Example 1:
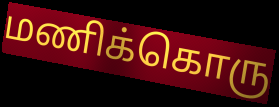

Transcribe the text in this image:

மணிக்கொரு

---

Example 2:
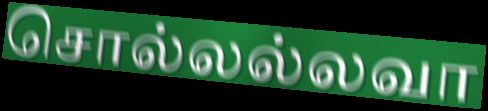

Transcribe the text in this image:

சொல்லல்லவா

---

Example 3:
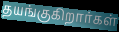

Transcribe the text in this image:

தயங்குகிறார்கள்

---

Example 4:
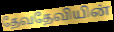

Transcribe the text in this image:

தேவதேவியின்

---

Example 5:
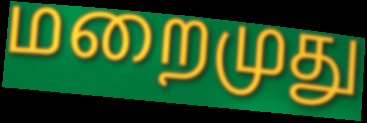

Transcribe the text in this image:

மறைமுது